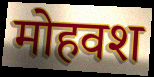
मोहवश